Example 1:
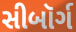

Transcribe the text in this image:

સીબૉર્ગ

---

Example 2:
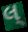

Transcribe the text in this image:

લ્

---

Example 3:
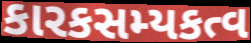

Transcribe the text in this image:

કારકસમ્યકત્વ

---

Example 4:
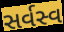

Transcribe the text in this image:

સર્વસ્વ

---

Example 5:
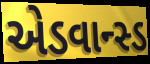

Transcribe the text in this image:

એડવાન્સ્ડ